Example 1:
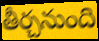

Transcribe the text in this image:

తీర్చనుంది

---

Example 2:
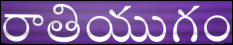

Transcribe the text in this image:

రాతియుగం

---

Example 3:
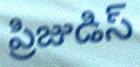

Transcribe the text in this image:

ప్రిజుడిస్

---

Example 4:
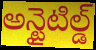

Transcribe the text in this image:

అన్టైటిల్డ్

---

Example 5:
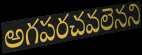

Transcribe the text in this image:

అగపరచవలెనని